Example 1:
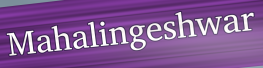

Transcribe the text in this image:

Mahalingeshwar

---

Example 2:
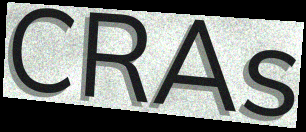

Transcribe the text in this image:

CRAs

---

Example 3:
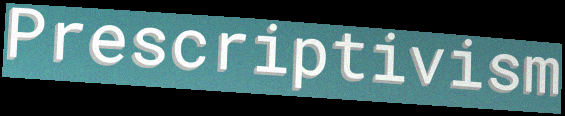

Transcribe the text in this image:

Prescriptivism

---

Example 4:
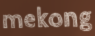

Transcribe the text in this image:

mekong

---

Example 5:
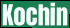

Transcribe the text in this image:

Kochin